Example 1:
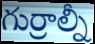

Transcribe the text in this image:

గుర్రాల్నీ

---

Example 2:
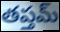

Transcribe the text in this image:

తప్తమ్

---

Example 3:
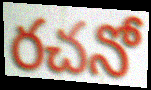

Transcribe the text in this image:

రచనో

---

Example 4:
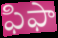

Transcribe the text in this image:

ఫిఫా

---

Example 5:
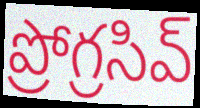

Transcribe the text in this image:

ప్రోగ్రసివ్